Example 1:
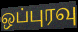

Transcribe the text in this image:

ஒப்புரவு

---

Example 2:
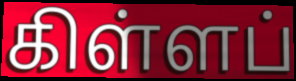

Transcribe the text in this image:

கிள்ளப்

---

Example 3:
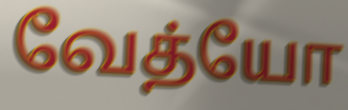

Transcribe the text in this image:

வேத்யோ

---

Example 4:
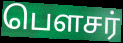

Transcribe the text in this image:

பௌசர்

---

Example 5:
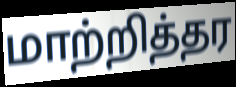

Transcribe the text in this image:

மாற்றித்தர